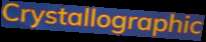
Crystallographic